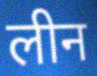
लीन